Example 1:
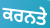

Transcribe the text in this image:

ਕਰਨਤੇ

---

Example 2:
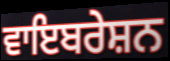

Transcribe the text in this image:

ਵਾਇਬਰੇਸ਼ਨ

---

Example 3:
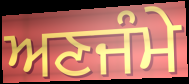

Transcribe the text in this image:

ਅਣਜੰਮੇ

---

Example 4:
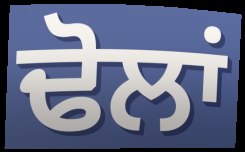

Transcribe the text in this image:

ਢੋਲਾਂ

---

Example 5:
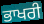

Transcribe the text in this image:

ਭਾਖਰੀ